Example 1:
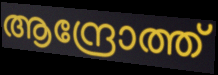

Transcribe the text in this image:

ആന്ദ്രോത്ത്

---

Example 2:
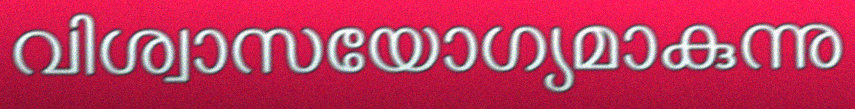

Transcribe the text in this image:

വിശ്വാസയോഗ്യമാകുന്നു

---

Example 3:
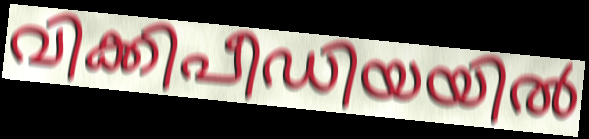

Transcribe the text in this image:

വിക്കിപീഡിയയിൽ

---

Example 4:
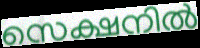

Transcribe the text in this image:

സെക്ഷനിൽ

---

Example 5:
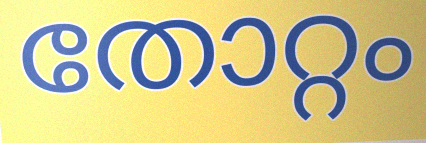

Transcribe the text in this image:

തോറ്റം